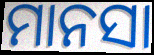
ମାନସା